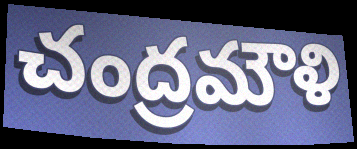
చంద్రమౌళి